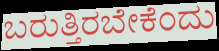
ಬರುತ್ತಿರಬೇಕೆಂದು